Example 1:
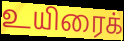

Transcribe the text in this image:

உயிரைக்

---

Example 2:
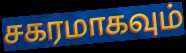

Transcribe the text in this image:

சகரமாகவும்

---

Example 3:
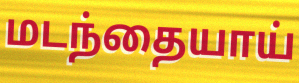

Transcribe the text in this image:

மடந்தையாய்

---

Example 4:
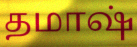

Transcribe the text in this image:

தமாஷ்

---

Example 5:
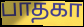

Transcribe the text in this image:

பாதகா